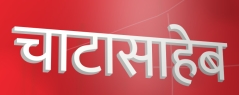
चाटासाहेब